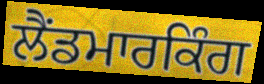
ਲੈਂਡਮਾਰਕਿੰਗ